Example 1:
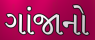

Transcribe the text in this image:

ગાંજાનો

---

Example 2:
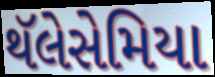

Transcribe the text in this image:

થૅલેસેમિયા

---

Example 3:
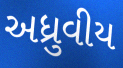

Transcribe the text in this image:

અધ્રુવીય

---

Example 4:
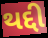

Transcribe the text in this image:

થદ્દી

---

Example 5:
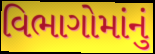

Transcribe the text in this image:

વિભાગોમાંનું